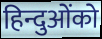
हिन्दुओंको